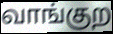
வாங்குற